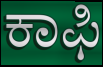
ಕಾಫಿ